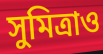
সুমিত্রাও